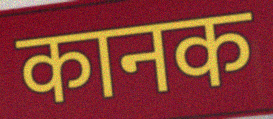
कानक